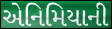
એનિમિયાની